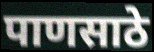
पाणसाठे